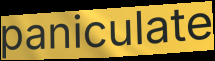
paniculate